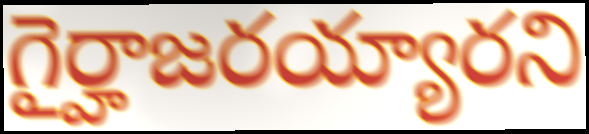
గైర్హాజరయ్యారని